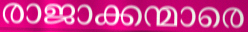
രാജാക്കന്മാരെ